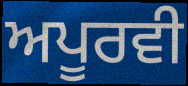
ਅਪੂਰਵੀ